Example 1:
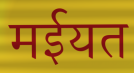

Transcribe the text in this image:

मईयत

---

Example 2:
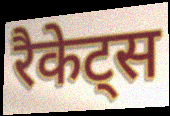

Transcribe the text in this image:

रैकेट्स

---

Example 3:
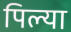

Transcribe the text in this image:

पिल्या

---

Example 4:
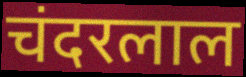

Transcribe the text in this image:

चंदरलाल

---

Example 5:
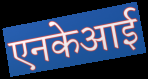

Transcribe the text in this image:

एनकेआई